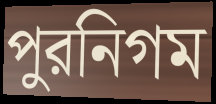
পুরনিগম